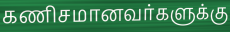
கணிசமானவர்களுக்கு